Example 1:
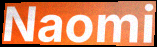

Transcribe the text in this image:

Naomi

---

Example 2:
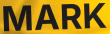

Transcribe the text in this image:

MARK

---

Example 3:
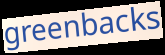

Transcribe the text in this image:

greenbacks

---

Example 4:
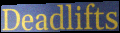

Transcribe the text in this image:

Deadlifts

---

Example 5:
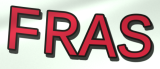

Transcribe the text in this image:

FRAS